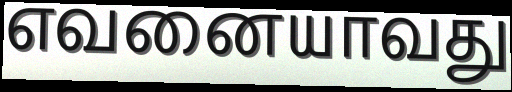
எவனையாவது